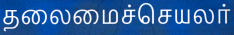
தலைமைச்செயலர்